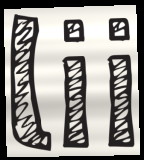
lii